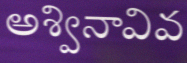
అశ్వినావివ